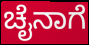
ಚೈನಾಗೆ